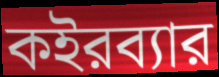
কইরব্যার